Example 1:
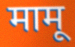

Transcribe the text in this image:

मामू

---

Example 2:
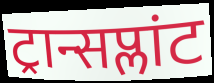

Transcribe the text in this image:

ट्रान्सप्लांट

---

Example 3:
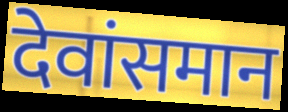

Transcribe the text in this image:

देवांसमान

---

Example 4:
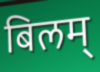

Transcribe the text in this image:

बिलम्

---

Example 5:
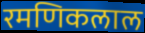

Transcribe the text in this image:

रमणिकलाल